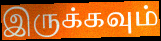
இருக்கவும்